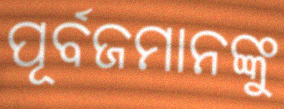
ପୂର୍ବଜମାନଙ୍କୁ